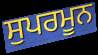
ਸੁਪਰਮੂਨ